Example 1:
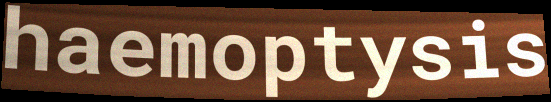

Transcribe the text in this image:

haemoptysis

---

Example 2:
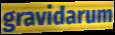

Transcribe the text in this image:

gravidarum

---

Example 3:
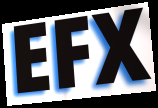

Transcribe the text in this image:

EFX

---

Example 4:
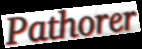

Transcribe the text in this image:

Pathorer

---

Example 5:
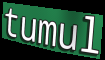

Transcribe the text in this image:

tumul